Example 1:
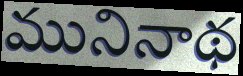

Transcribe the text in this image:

మునినాథ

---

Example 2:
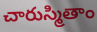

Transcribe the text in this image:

చారుస్మితాం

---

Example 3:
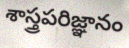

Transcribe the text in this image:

శాస్త్రపరిజ్ఞానం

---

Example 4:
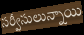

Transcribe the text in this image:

సర్వీసులున్నాయి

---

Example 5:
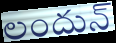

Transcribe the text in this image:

లందున్